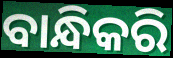
ବାନ୍ଧିକରି